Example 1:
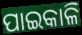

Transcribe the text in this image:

ପାଇକାଳି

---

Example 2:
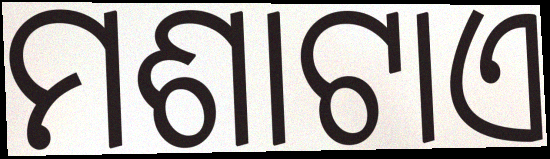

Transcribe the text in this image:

ମଶାଟାଏ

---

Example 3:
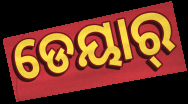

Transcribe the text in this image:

ଡେୟାର୍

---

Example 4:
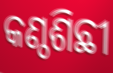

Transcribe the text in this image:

କଣ୍ଠଶିଛୀ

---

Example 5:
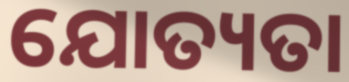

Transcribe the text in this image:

ଯୋତ୍ୟତା